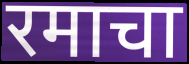
रमाचा